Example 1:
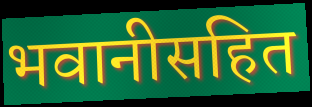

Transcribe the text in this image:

भवानीसहित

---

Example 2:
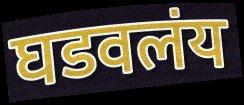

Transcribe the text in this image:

घडवलंय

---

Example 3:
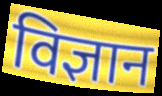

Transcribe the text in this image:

विज्ञान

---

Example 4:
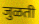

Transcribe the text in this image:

जुळती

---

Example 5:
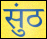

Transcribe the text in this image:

सुंठ